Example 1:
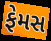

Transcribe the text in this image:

ફેમસ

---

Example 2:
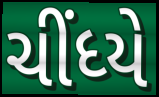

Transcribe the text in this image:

ચીંધ્યે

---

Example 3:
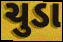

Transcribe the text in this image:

ચુડા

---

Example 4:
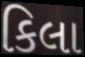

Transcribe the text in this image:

કિલા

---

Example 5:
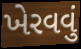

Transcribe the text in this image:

ખેરવવું